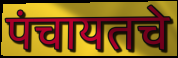
पंचायतचे